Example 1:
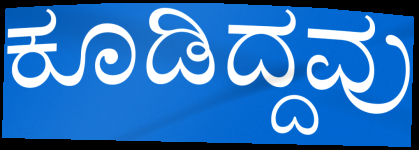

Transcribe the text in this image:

ಕೂಡಿದ್ದವು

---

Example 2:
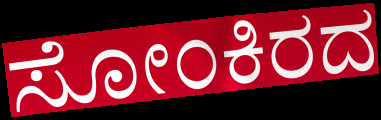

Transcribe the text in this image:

ಸೋಂಕಿರದ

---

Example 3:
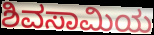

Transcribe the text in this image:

ಶಿವಸಾಮಿಯ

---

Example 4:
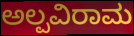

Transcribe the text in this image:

ಅಲ್ಪವಿರಾಮ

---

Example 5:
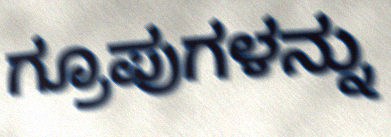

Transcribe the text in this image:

ಗ್ರೂಪುಗಳನ್ನು